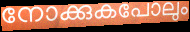
നോക്കുകപോലും